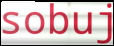
sobuj